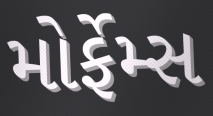
મોર્ફેમ્સ